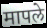
मापले